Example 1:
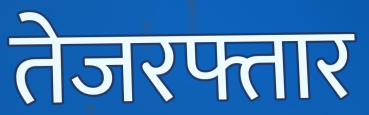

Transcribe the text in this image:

तेजरफ्तार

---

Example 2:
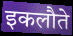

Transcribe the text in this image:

इकलौते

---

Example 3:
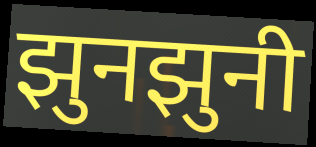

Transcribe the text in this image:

झुनझुनी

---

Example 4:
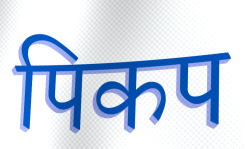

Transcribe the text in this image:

पिकप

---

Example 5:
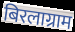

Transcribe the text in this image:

बिरलाग्राम